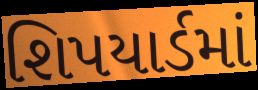
શિપયાર્ડમાં